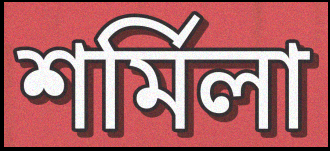
শর্মিলা